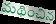
మథించిన